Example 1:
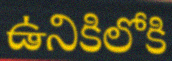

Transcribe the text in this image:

ఉనికిలోకి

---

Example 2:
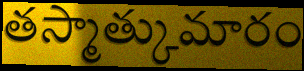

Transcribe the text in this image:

తస్మాత్కుమారం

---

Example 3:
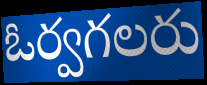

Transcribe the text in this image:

ఓర్వగలరు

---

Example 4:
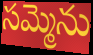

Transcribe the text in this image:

సమ్మెను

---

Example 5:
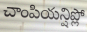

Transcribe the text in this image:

చాంపియన్షిప్లో